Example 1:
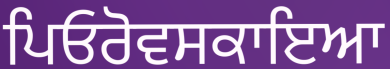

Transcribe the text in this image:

ਪਿਓਰੋਵਸਕਾਇਆ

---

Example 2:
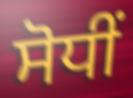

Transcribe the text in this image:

ਸੋਧੀਂ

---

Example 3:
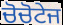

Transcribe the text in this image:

ਚੋਚੋਟੇਜ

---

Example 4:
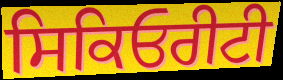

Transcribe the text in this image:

ਸਿਕਿਓਰੀਟੀ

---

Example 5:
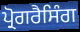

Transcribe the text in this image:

ਪ੍ਰੋਗਰੈਸਿੰਗ